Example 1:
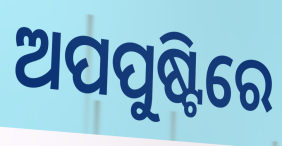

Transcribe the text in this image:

ଅପପୁଷ୍ଟିରେ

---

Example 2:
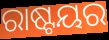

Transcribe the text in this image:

ରାଷ୍ଟୟର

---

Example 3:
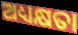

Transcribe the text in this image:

ଅଧ୍ୟକ୍ଷତା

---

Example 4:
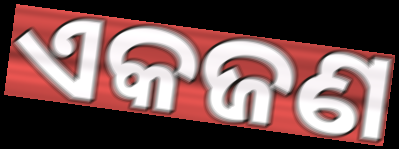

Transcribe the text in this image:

ଏକଜଣ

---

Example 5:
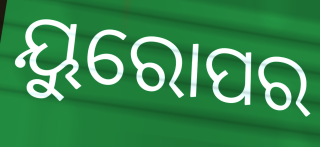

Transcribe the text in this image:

ୟୁରୋପର